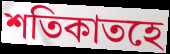
শতিকাতহে